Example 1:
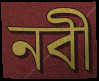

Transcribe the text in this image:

নবী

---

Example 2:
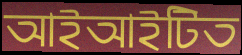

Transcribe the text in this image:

আইআইটিত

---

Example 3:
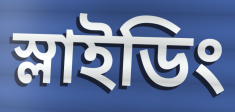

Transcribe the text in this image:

স্লাইডিং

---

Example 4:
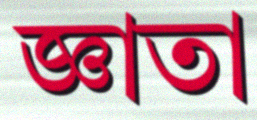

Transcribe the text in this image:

জ্ঞাতা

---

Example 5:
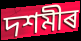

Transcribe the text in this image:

দশমীৰ